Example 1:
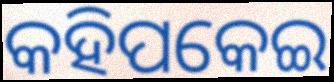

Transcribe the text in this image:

କହିପକେଇ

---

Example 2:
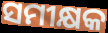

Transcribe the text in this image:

ସମୀକ୍ଷକ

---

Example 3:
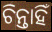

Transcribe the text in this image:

ଚିନ୍ତାହିଁ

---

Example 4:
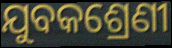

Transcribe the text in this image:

ଯୁବକଶ୍ରେଣୀ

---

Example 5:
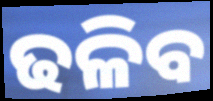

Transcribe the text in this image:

ଢଳିବ